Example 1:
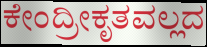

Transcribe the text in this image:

ಕೇಂದ್ರೀಕೃತವಲ್ಲದ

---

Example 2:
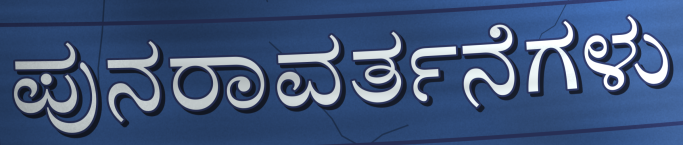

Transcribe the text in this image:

ಪುನರಾವರ್ತನೆಗಳು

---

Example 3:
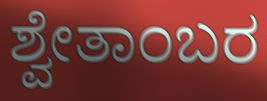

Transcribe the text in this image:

ಶ್ವೇತಾಂಬರ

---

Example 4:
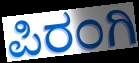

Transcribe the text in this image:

ಪಿರಂಗಿ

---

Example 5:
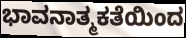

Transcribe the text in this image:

ಭಾವನಾತ್ಮಕತೆಯಿಂದ